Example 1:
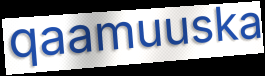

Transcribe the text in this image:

qaamuuska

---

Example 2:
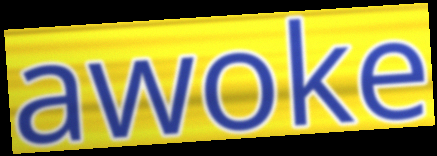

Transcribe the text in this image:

awoke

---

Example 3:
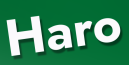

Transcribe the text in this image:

Haro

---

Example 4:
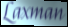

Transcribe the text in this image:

Laxman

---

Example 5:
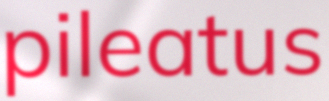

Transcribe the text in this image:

pileatus